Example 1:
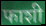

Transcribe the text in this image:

फाशी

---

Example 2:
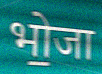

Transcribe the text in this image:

भो॒जा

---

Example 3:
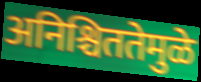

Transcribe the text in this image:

अनिश्चिततेमुळे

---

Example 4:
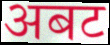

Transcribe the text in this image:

अबट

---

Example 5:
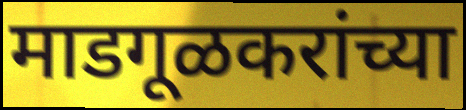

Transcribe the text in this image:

माडगूळकरांच्या